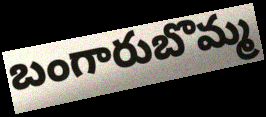
బంగారుబొమ్మ